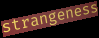
strangeness